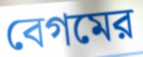
বেগমের